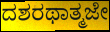
ದಶರಥಾತ್ಮಜೇ